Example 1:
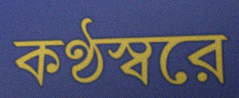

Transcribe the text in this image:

কণ্ঠস্বরে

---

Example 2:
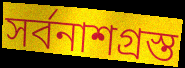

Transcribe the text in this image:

সর্বনাশগ্রস্ত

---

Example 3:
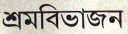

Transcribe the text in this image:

শ্রমবিভাজন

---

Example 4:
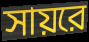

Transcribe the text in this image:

সায়রে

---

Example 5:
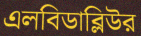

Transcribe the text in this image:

এলবিডাব্লিউর